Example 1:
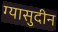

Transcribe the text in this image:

ग्यासुदीन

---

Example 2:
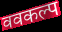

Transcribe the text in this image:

ववकल्प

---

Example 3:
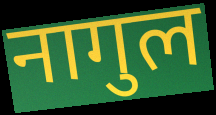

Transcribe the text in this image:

नागुल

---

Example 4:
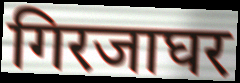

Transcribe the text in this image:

गिरजाघर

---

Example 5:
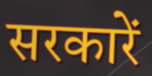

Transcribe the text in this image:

सरकारें